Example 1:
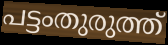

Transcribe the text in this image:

പട്ടംതുരുത്ത്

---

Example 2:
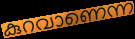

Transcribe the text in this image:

കുറവാണെന്ന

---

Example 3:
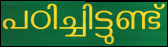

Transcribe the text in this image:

പഠിച്ചിട്ടുണ്ട്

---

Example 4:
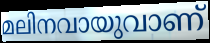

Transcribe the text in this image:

മലിനവായുവാണ്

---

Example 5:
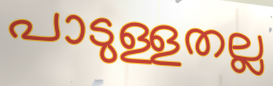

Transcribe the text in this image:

പാടുള്ളതല്ല